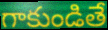
గాకుండితే